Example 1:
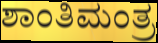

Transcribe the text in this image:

ಶಾಂತಿಮಂತ್ರ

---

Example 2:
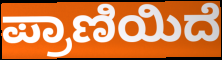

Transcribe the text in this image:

ಪ್ರಾಣಿಯಿದೆ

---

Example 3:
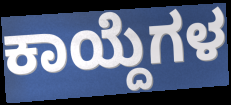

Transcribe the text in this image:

ಕಾಯ್ದೆಗಳ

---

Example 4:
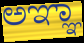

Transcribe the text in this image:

ಅಞ್ಞಾ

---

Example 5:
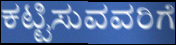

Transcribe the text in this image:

ಕಟ್ಟಿಸುವವರಿಗೆ